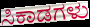
ಸಿಕಾಡಗಳು